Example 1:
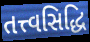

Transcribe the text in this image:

તત્ત્વસિદ્ધિ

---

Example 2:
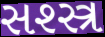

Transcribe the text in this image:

સશ્સ્ત્ર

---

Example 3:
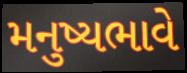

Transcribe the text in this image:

મનુષ્યભાવે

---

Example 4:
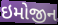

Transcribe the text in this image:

ઇમોજીન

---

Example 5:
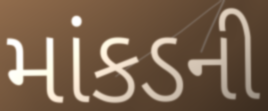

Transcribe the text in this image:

માંકડની